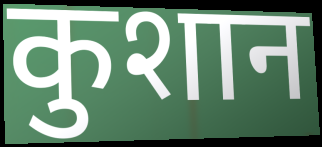
कुशान